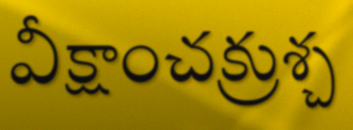
వీక్షాంచక్రుశ్చ